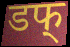
डफ्